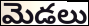
మెడలు